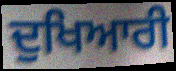
ਦੁਖਿਆਰੀ